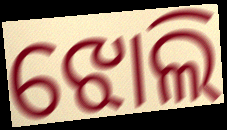
ଝୋଲି